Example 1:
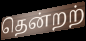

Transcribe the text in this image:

தென்றற்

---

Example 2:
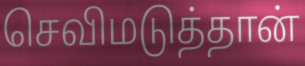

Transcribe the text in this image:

செவிமடுத்தான்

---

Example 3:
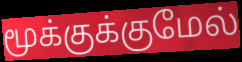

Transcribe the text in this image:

மூக்குக்குமேல்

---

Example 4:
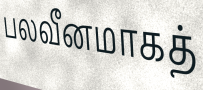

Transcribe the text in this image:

பலவீனமாகத்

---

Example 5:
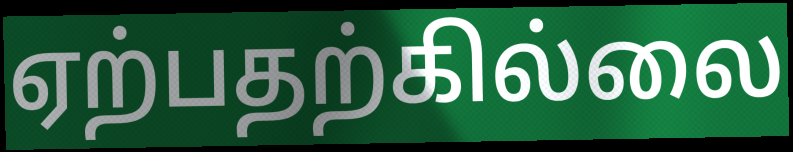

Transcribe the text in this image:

ஏற்பதற்கில்லை